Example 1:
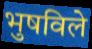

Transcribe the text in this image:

भुषविले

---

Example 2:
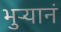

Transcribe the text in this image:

भुऱ्यानं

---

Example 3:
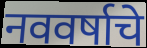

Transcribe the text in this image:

नववर्षाचे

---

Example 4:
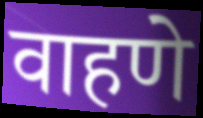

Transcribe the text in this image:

वाहणे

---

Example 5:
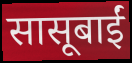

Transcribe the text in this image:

सासूबाईं